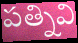
పత్నివి